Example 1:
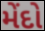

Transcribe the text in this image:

મેંદો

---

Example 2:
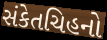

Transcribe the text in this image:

સંકેતચિહનો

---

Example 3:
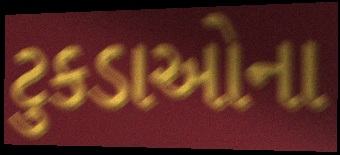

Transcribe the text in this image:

ટુકડાઓના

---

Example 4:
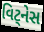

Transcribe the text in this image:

વિટ્નેસ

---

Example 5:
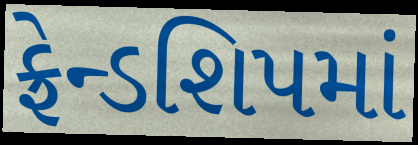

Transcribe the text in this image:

ફ્રેન્ડશિપમાં